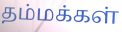
தம்மக்கள்